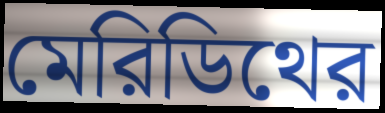
মেরিডিথের